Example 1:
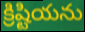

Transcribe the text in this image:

క్రిష్టియను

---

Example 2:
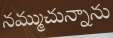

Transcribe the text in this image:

నమ్ముచున్నాను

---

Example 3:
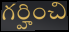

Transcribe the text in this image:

గర్హించి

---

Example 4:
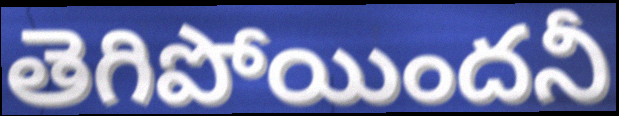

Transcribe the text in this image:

తెగిపోయిందనీ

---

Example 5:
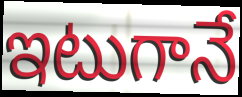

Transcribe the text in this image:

ఇటుగానే